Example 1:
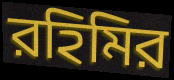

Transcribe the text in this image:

রহিমির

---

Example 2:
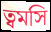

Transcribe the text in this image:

ত্বমসি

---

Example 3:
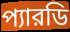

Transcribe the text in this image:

প্যারডি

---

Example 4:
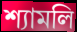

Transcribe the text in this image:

শ্যামলি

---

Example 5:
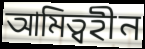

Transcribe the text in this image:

আমিত্বহীন